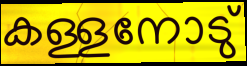
കള്ളനോടു്